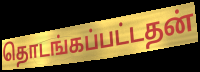
தொடங்கப்பட்டதன்